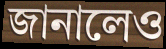
জানালেও